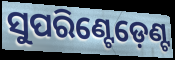
ସୁପରିଣ୍ଟେଡ଼େଣ୍ଟ